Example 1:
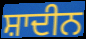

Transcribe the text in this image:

ਸ਼ਾਦੀਨ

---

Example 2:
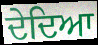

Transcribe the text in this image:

ਦੇਦਿਆ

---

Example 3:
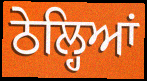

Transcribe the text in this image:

ਠੇਲ੍ਹਿਆਂ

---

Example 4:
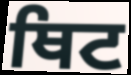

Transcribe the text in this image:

ਥਿਟ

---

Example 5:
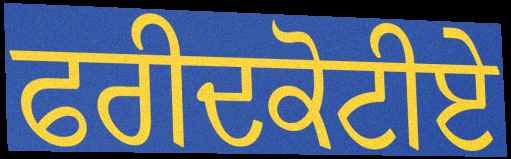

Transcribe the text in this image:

ਫਰੀਦਕੋਟੀਏ